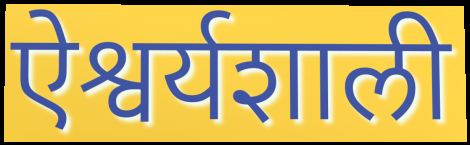
ऐश्वर्यशाली